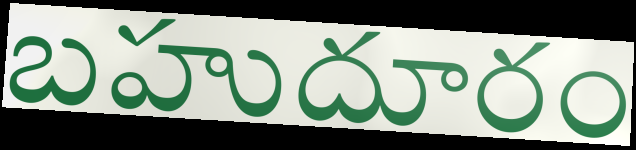
బహుదూరం